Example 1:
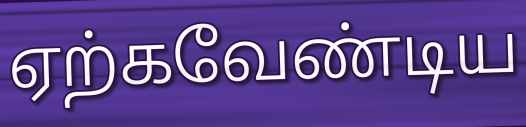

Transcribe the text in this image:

ஏற்கவேண்டிய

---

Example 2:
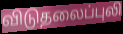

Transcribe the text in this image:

விடுதலைப்புலி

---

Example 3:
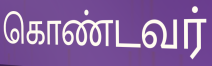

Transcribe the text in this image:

கொண்டவர்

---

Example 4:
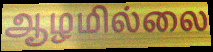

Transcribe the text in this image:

ஆழமில்லை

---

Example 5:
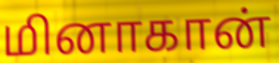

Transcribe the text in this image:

மினாகான்